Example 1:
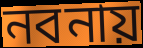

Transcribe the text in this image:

নবনায়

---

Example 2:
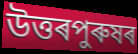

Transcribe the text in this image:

উত্তৰপুৰুষৰ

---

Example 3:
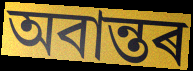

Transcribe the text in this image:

অবান্তৰ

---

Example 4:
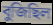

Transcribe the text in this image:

বুজিছিল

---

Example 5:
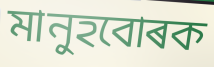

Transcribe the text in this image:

মানুহবোৰক